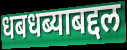
धबधब्याबद्दल